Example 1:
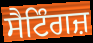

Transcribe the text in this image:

ਸੈਟਿੰਗਜ਼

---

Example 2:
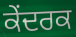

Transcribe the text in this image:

ਕੇਂਦਰਕ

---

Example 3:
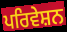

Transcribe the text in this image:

ਪਰਿਵੇਸ਼ਨ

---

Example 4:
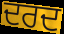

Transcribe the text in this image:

ਦਰਦ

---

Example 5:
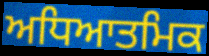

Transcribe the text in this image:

ਅਧਿਆਤਮਿਕ